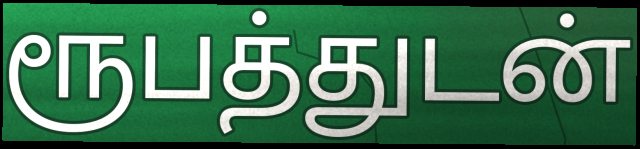
ரூபத்துடன்